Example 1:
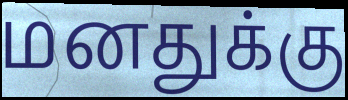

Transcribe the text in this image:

மனதுக்கு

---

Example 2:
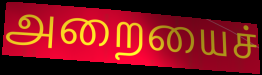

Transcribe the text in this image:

அறையைச்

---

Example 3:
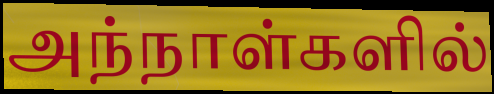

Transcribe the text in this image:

அந்நாள்களில்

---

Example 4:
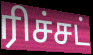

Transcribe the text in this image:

ரிச்சட்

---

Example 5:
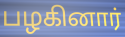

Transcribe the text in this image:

பழகினார்